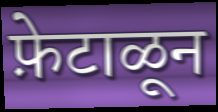
फ़ेटाळून